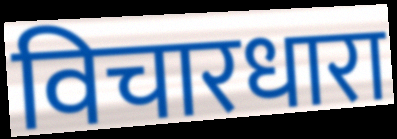
विचारधारा